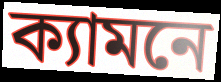
ক্যামনে